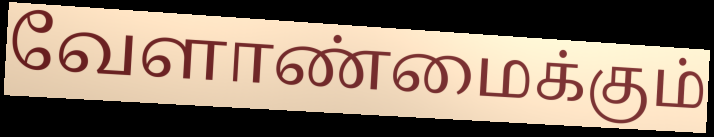
வேளாண்மைக்கும்